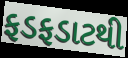
ફડફડાટથી